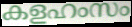
കളഹംസം